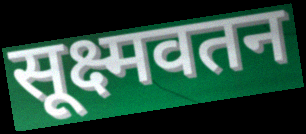
सूक्ष्मवतन